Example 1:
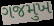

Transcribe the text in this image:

ગજમુખ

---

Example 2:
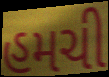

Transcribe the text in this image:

હમચી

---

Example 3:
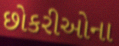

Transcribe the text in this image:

છોકરીઓના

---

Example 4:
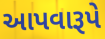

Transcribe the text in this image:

આપવારૂપે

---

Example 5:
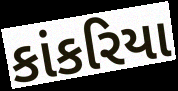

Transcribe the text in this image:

કાંકરિયા